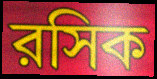
রসিক